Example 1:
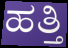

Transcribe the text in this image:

ಹತ್ತಿ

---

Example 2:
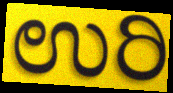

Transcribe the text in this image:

ಉರಿ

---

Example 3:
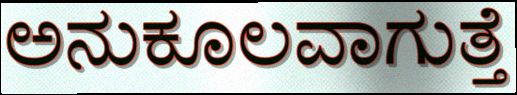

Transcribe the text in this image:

ಅನುಕೂಲವಾಗುತ್ತೆ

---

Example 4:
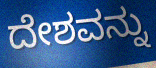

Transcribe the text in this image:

ದೇಶವನ್ನು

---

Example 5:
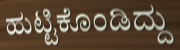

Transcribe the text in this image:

ಹುಟ್ಟಿಕೊಂಡಿದ್ದು